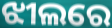
ଝୀଲରେ